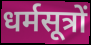
धर्मसूत्रों